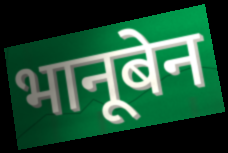
भानूबेन